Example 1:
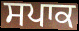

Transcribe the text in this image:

ਸਪਾਕ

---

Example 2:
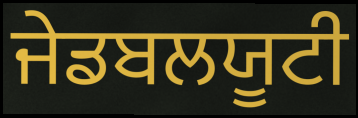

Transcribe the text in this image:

ਜੇਡਬਲਯੂਟੀ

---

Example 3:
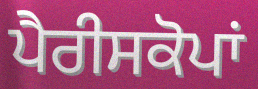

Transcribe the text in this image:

ਪੈਰੀਸਕੋਪਾਂ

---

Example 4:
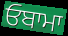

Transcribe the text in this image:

ਓਬਾਮਾ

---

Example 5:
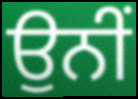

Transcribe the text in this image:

ਉਨੀਂ